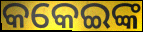
କକେଇଙ୍କ